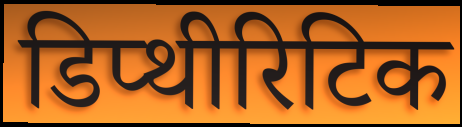
डिप्थीरिटिक